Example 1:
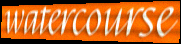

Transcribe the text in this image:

watercourse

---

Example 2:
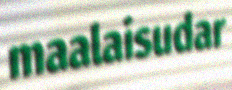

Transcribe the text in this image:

maalaisudar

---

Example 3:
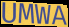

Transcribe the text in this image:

UMWA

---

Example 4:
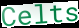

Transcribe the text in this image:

Celts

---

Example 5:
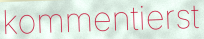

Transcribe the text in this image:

kommentierst